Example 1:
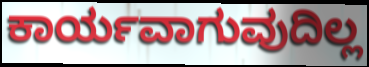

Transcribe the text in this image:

ಕಾರ್ಯವಾಗುವುದಿಲ್ಲ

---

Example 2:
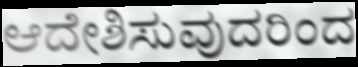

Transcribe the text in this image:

ಆದೇಶಿಸುವುದರಿಂದ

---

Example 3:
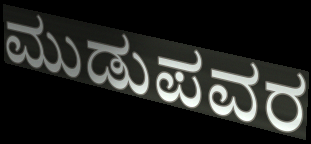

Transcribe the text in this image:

ಮುಡುಪವರ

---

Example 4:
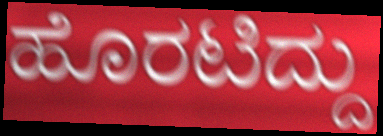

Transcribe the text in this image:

ಹೊರಟಿದ್ದು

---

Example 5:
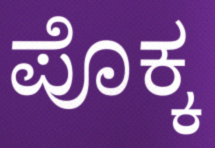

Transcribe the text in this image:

ಪೊಕ್ಕ